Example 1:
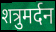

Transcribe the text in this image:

शत्रुमर्दन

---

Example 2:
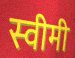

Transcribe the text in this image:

स्वीमी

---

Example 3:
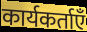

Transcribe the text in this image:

कार्यकर्ताएँ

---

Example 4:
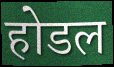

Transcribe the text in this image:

होडल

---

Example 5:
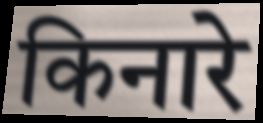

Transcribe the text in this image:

किनारे